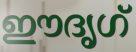
ഈദൃഗ്